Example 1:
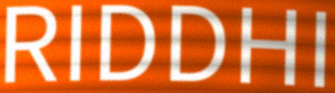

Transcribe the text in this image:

RIDDHI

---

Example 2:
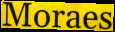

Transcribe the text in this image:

Moraes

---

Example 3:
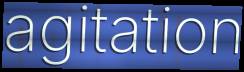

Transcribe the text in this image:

agitation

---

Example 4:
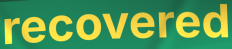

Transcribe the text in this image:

recovered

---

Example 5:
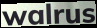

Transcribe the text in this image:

walrus